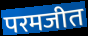
परमजीत